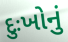
દુઃખોનું